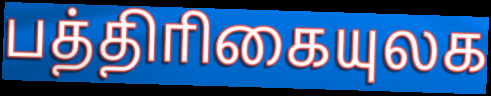
பத்திரிகையுலக